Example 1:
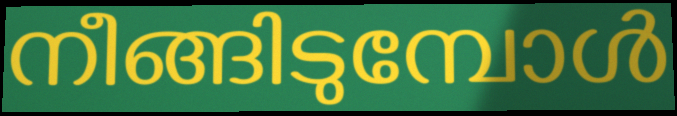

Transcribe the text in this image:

നീങ്ങിടുമ്പോൾ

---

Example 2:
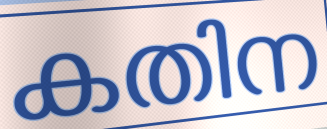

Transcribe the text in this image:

കതിന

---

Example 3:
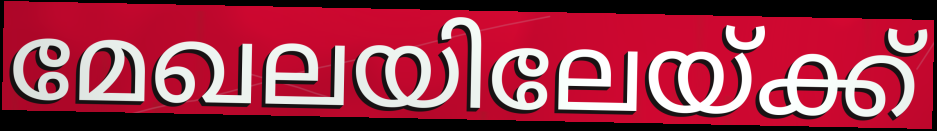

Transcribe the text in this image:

മേഖലയിലേയ്ക്ക്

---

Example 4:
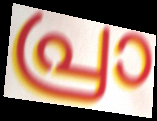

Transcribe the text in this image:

പ്രാ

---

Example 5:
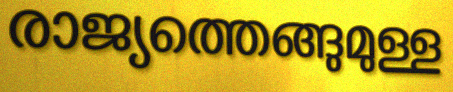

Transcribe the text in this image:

രാജ്യത്തെങ്ങുമുള്ള